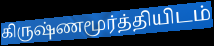
கிருஷ்ணமூர்த்தியிடம்